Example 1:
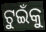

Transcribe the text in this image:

ଟୁଇଁକୁ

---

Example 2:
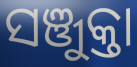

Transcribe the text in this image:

ସଞ୍ଜୁକ୍ତା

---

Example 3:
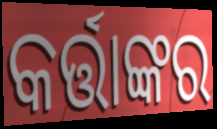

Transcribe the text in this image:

କର୍ତ୍ତାଙ୍କର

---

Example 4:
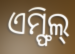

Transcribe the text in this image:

ଏମ୍ଫିଲ୍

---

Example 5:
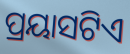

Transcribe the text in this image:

ପ୍ରୟାସଟିଏ